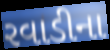
રવાડીના